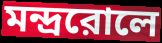
মন্দ্ররোলে